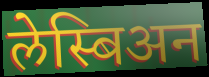
लेस्बिअन